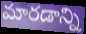
మారడాన్ని